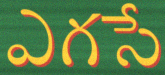
ఎగసే